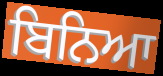
ਬਿਨਿਆ